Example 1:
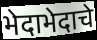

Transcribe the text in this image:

भेदाभेदाचे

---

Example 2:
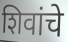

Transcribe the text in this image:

शिवांचे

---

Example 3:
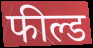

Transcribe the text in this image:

फील्ड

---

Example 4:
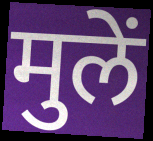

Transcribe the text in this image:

मुलें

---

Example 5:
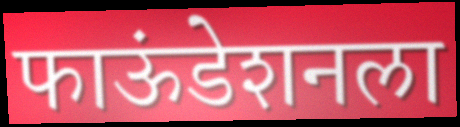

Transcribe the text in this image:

फाऊंडेशनला